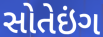
સોતેઇંગ